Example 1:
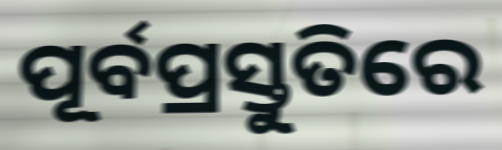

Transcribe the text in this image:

ପୂର୍ବପ୍ରସ୍ତୁତିରେ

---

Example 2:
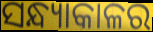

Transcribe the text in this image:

ସନ୍ଧ୍ୟାକାଳର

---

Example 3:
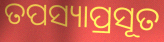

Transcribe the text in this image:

ତପସ୍ୟାପ୍ରସୂତ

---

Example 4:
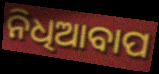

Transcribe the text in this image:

ନିଧିଆବାପ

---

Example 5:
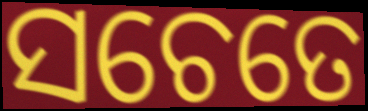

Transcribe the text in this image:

ସଚେତେ